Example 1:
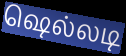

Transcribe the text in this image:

ஷெல்லடி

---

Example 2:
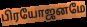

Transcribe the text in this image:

பிரயோஜனமே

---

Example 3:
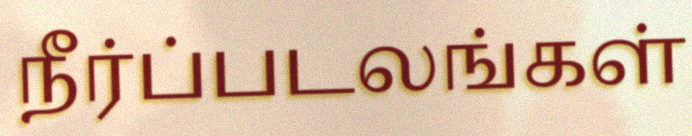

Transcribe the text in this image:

நீர்ப்படலங்கள்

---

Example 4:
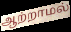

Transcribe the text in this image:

ஆற்றாமல்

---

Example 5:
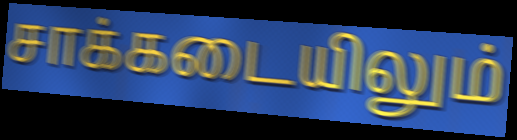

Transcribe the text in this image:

சாக்கடையிலும்